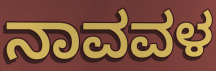
ನಾವವಳ